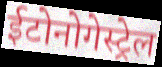
ईटोनोगेस्ट्रेल